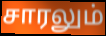
சாரலும்